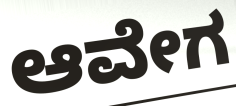
ಆವೇಗ